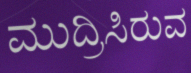
ಮುದ್ರಿಸಿರುವ